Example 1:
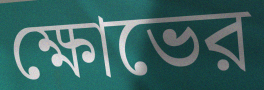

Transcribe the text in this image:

ক্ষোভের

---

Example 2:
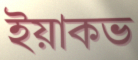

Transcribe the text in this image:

ইয়াকভ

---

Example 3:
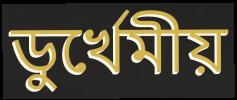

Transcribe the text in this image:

ডুর্খেমীয়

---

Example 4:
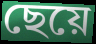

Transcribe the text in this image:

ছেয়ে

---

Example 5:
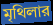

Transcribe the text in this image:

মৃথিলার